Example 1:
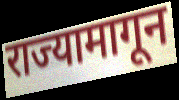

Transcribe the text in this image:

राज्यामागून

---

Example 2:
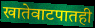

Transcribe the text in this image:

खातेवाटपातही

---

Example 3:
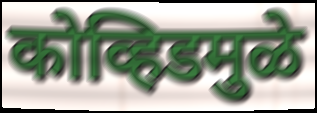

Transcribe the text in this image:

कोव्हिडमुळे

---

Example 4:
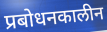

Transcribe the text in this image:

प्रबोधनकालीन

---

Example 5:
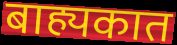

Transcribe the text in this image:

बाह्यकात